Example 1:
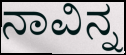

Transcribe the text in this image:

ನಾವಿನ್ನ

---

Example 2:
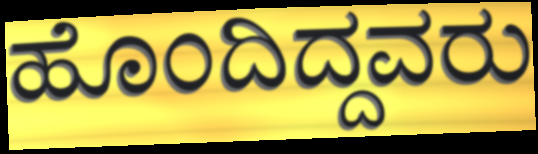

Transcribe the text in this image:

ಹೊಂದಿದ್ದವರು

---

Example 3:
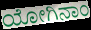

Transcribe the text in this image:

ಯೋಗಿನಾಂ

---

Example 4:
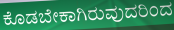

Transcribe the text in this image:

ಕೊಡಬೇಕಾಗಿರುವುದರಿಂದ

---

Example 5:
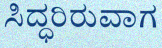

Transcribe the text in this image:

ಸಿದ್ಧರಿರುವಾಗ